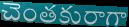
చెంతకురాగా